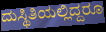
ದುಸ್ಥಿತಿಯಲ್ಲಿದ್ದರೂ